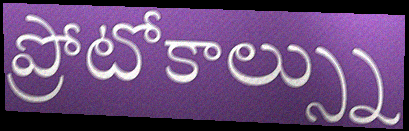
ప్రోటోకాల్స్ను